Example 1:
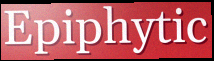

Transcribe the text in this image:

Epiphytic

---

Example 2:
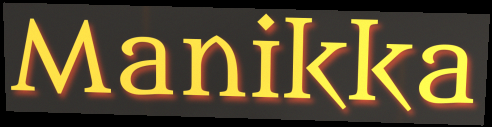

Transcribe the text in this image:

Manikka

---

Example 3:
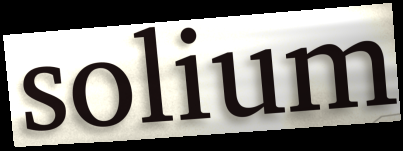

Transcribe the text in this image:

solium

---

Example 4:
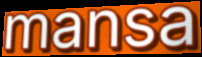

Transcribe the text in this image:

mansa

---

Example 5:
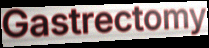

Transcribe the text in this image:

Gastrectomy